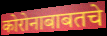
कोरोनाबाबतचे